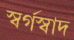
স্বর্গস্বাদ